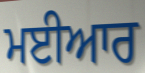
ਮਈਆਰ